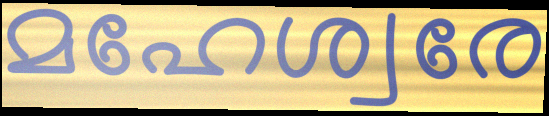
മഹേശ്വരേ